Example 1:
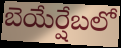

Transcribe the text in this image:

బెయేర్షేబలో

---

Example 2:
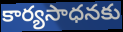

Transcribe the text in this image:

కార్యసాధనకు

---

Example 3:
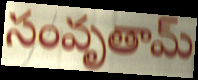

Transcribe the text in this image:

సంవృతామ్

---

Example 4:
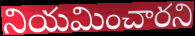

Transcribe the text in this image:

నియమించారని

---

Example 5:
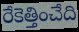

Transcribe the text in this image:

రేకెత్తించేది